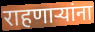
राहणाऱ्यांना